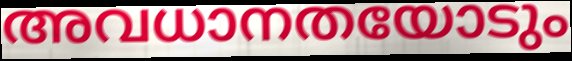
അവധാനതയോടും